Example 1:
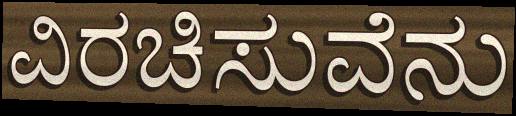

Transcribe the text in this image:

ವಿರಚಿಸುವೆನು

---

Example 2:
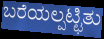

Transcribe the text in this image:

ಬರೆಯಲ್ಪಟ್ಟಿತು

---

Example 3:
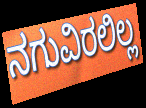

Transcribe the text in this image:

ನಗುವಿರಲಿಲ್ಲ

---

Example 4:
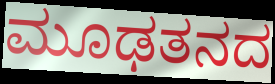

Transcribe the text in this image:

ಮೂಢತನದ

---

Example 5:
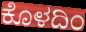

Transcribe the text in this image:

ಕೊಳದಿಂ